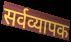
सर्वव्यापक